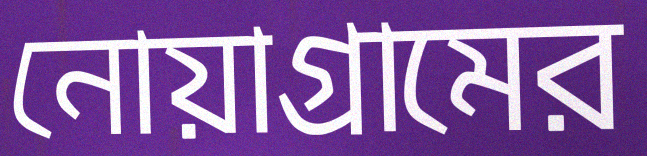
নোয়াগ্রামের